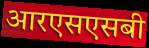
आरएसएसबी